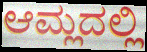
ಆಮ್ಲದಲ್ಲಿ